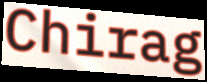
Chirag